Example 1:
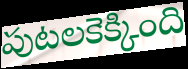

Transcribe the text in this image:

పుటలకెక్కింది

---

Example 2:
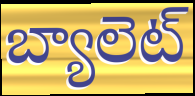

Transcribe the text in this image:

బ్యాలెట్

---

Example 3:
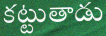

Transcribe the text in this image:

కట్టుతాడు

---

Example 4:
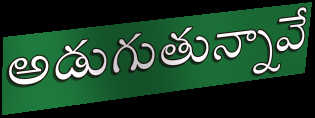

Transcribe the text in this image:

అడుగుతున్నావే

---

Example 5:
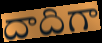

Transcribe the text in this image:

దాదిగా